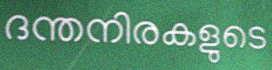
ദന്തനിരകളുടെ